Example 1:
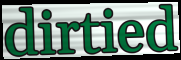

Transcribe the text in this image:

dirtied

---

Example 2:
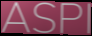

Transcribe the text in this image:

ASPI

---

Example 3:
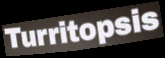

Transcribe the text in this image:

Turritopsis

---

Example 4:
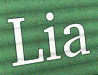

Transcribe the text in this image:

Lia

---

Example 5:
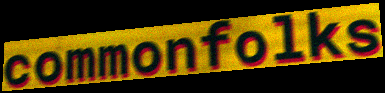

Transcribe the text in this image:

commonfolks